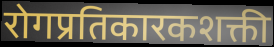
रोगप्रतिकारकशक्ती